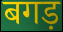
बगड़